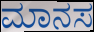
ಮಾನಸ